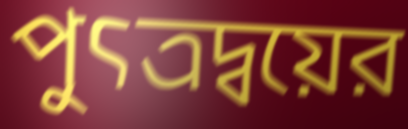
পুৎত্রদ্বয়ের